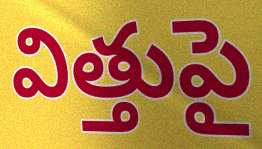
విత్తుపై